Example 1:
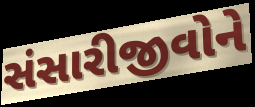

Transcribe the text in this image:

સંસારીજીવોને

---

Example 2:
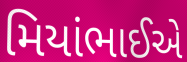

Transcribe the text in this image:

મિયાંભાઈએ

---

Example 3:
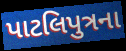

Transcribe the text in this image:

પાટલિપુત્રના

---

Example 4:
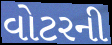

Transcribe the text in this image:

વોટરની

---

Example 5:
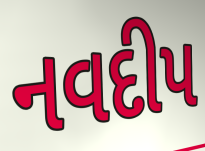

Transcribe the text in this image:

નવદીપ